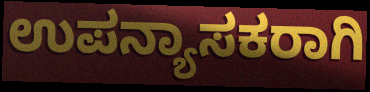
ಉಪನ್ಯಾಸಕರಾಗಿ